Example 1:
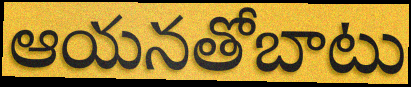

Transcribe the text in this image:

ఆయనతోబాటు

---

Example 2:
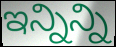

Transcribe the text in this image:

ఇన్నిన్ని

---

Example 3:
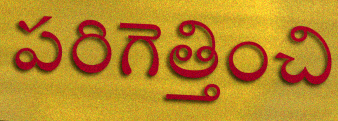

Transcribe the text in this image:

పరిగెత్తించి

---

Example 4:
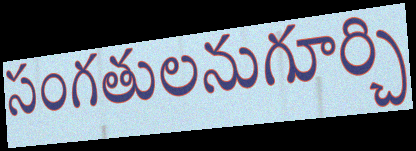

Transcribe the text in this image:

సంగతులనుగూర్చి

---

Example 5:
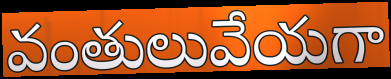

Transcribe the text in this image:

వంతులువేయగా